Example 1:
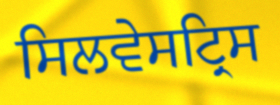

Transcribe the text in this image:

ਸਿਲਵੇਸਟ੍ਰਿਸ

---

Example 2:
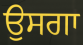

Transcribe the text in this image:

ਉਸਗਾ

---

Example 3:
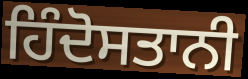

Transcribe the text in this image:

ਹਿੰਦੋਸਤਾਨੀ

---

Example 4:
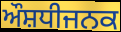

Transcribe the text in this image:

ਔਸ਼ਧੀਜਨਕ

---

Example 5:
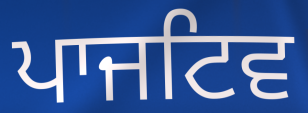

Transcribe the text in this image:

ਪਾਜਟਿਵ